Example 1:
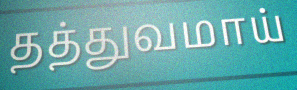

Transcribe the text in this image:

தத்துவமாய்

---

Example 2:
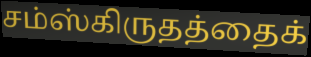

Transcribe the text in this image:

சம்ஸ்கிருதத்தைக்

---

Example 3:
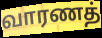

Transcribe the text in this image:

வாரணத்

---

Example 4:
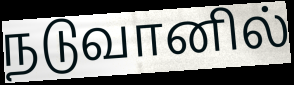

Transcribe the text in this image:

நடுவானில்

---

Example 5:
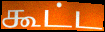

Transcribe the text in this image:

கூட்ட